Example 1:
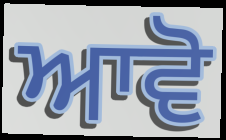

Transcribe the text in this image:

ਆਵੋ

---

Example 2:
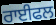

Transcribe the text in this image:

ਰਾਈਫਲ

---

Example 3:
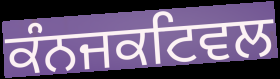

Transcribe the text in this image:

ਕੰਨਜਕਟਿਵਲ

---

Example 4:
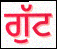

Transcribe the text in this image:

ਗੁੱਟ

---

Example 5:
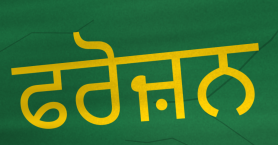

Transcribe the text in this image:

ਫਰੋਜ਼ਨ